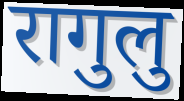
रागुलु